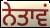
ਨੇਤਾਵਂ